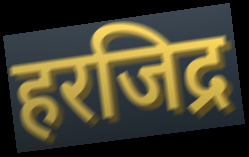
हरजिद्र